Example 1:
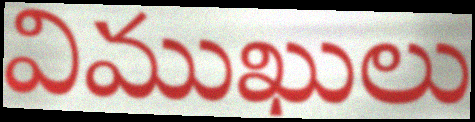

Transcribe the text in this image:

విముఖులు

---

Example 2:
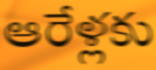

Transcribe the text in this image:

ఆరేళ్లకు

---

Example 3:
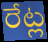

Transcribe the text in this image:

రేట్ల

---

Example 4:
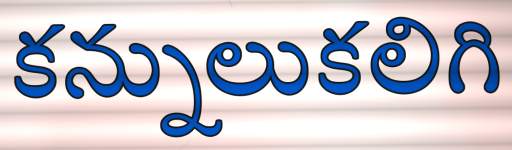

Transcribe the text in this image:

కన్నులుకలిగి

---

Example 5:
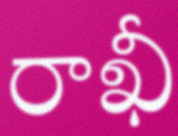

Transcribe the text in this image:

రాఖీ